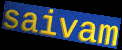
saivam